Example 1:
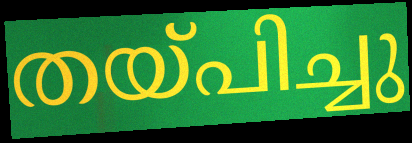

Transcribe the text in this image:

തയ്പിച്ചു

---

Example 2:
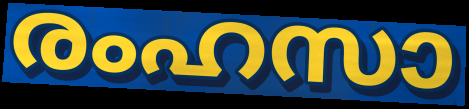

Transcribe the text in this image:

രംഹസാ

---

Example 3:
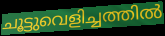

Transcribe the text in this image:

ചൂട്ടുവെളിച്ചത്തിൽ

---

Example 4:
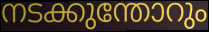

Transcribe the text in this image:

നടക്കുന്തോറും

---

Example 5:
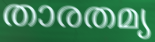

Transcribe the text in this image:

താരതമ്യ